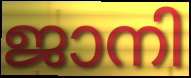
ജാനി